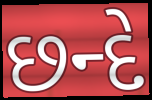
છન્દે